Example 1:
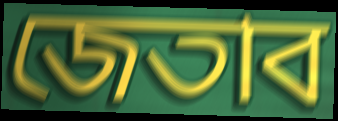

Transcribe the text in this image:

জেতাব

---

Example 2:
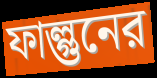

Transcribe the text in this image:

ফাল্গুনের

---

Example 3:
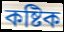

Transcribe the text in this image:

কষ্টিক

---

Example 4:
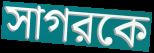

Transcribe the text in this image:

সাগরকে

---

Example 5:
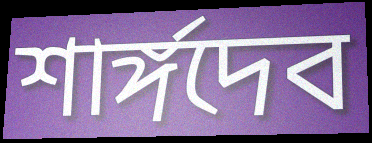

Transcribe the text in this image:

শার্ঙ্গদেব